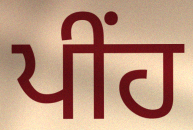
ਪੀਂਹ